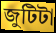
জুটিটা